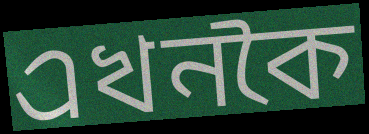
এখনকৈ